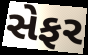
સેફર